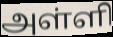
அள்ளி